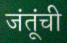
जंतूंची